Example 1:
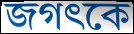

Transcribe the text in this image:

জগৎকে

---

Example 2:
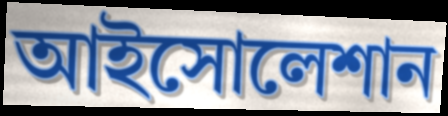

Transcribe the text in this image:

আইসোলেশান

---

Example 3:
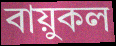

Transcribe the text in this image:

বায়ুকল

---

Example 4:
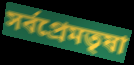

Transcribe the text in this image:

সর্বপ্রেমতৃষা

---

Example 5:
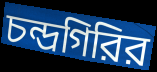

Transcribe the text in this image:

চন্দ্রগিরির